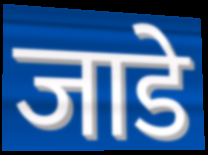
जाडे